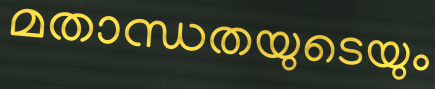
മതാന്ധതയുടെയും